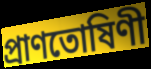
প্ৰাণতোষিণী